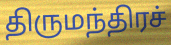
திருமந்திரச்